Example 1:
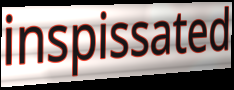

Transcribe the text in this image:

inspissated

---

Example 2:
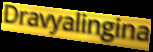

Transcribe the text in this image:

Dravyalingina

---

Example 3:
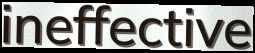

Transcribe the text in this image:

ineffective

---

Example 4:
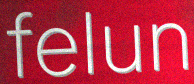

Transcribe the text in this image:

felun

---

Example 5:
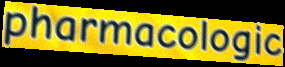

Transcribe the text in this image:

pharmacologic